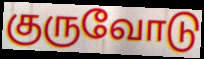
குருவோடு